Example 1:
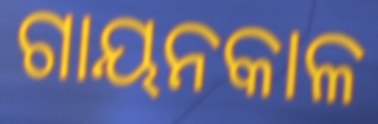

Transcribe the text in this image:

ଗାୟନକାଳ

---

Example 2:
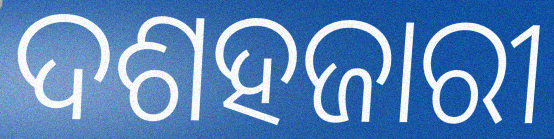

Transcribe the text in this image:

ଦଶହଜାରୀ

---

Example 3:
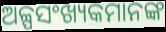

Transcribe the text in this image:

ଅଳ୍ପସଂଖ୍ୟକମାନଙ୍କ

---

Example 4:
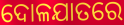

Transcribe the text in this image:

ଦୋଳଯାତରେ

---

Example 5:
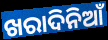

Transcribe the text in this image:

ଖରାଦିନିଆଁ